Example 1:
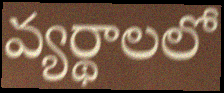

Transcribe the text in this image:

వ్యర్థాలలో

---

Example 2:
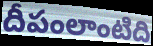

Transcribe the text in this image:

దీపంలాంటిది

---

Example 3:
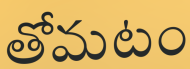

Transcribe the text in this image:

తోమటం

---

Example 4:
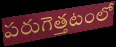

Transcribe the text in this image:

పరుగెత్తటంలో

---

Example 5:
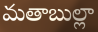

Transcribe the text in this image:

మతాబుల్లా